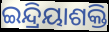
ଇନ୍ଦ୍ରିୟାଶକ୍ତି